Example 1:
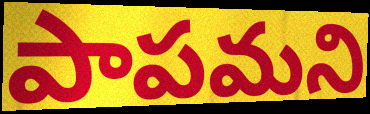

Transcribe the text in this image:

పాపమని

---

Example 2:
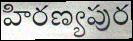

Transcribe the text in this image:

హిరణ్యపుర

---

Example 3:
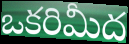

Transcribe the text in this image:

ఒకరిమీద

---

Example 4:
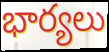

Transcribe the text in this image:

భార్యలు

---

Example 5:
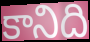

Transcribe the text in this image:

కానిది